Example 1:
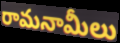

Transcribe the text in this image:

రామనామీలు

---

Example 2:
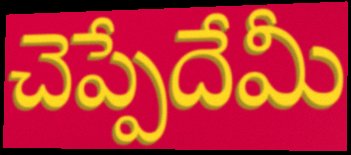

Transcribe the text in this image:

చెప్పేదేమీ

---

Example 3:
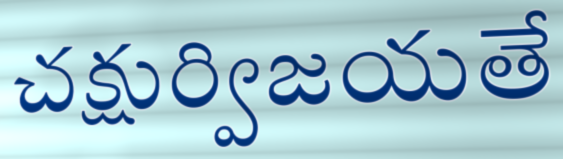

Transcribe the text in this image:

చక్షుర్విజయతే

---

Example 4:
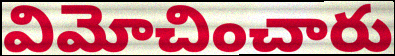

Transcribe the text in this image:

విమోచించారు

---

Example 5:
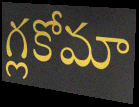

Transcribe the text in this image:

గ్లకోమా